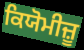
ਕਿਯੋਮੀਜ਼ੂ